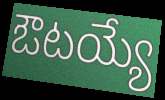
ఔటయ్యే